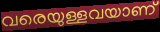
വരെയുള്ളവയാണ്